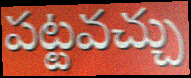
పట్టవచ్చు